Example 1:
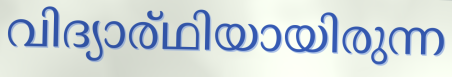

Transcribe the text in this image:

വിദ്യാര്ഥിയായിരുന്ന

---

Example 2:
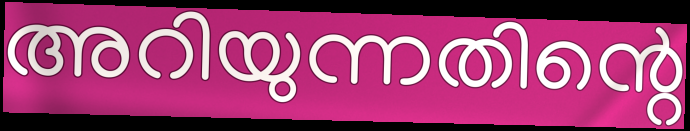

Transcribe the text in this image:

അറിയുന്നതിന്റെ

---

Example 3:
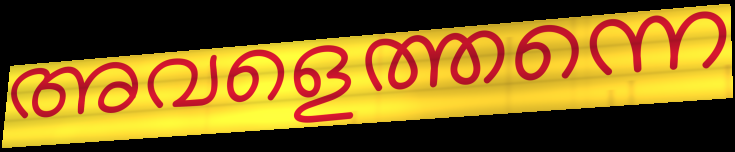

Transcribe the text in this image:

അവളെത്തന്നെ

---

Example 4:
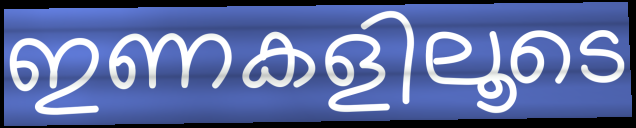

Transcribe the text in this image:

ഇണകളിലൂടെ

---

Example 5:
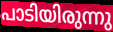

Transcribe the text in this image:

പാടിയിരുന്നു